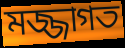
মজ্জাগত